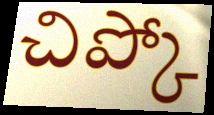
చిప్కో